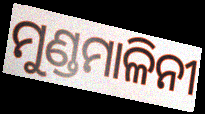
ମୁଣ୍ଡମାଳିନୀ